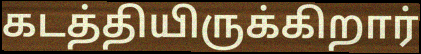
கடத்தியிருக்கிறார்